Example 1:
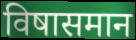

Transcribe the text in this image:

विषासमान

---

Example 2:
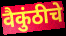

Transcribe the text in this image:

वैकुंठीचे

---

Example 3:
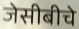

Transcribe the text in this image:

जेसीबीचे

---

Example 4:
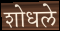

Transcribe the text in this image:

शोधले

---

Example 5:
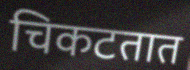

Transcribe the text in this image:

चिकटतात